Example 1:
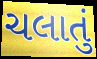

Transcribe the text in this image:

ચલાતું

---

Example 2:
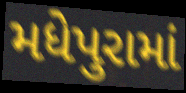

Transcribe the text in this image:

મધેપુરામાં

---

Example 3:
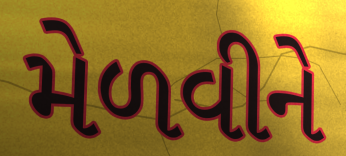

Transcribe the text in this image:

મેળવીને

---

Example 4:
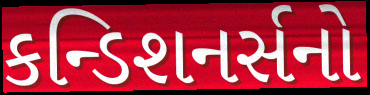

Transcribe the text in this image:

કન્ડિશનર્સનો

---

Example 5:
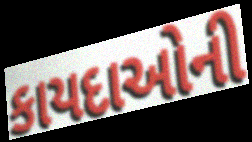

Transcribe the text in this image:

કાયદાઓની